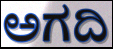
ಅಗದಿ